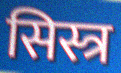
सिस्त्र